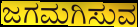
ಜಗಮಗಿಸುವ